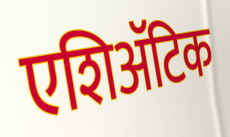
एशिॲटिक